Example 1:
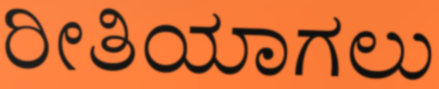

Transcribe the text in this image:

ರೀತಿಯಾಗಲು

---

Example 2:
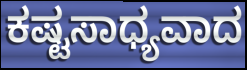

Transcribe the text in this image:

ಕಷ್ಟಸಾಧ್ಯವಾದ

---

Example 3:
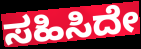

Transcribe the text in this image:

ಸಹಿಸಿದೇ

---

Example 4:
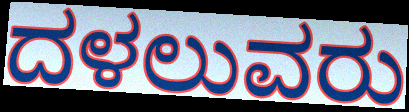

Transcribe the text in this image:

ದಳಲುವರು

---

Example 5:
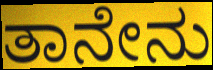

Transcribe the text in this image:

ತಾನೇನು